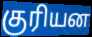
குரியன